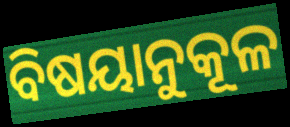
ବିଷୟାନୁକୂଳ